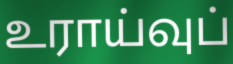
உராய்வுப்